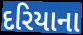
દરિયાના